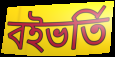
বইভর্তি